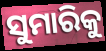
ସୁମାରିକୁ